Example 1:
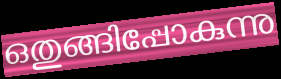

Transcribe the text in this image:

ഒതുങ്ങിപ്പോകുന്നു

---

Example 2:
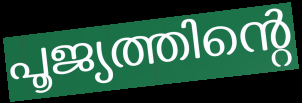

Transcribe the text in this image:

പൂജ്യത്തിന്റെ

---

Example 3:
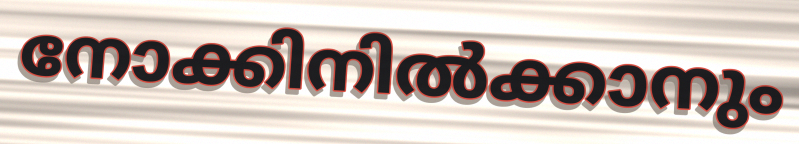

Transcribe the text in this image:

നോക്കിനിൽക്കാനും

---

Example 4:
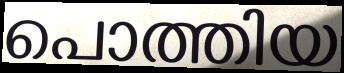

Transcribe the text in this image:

പൊത്തിയ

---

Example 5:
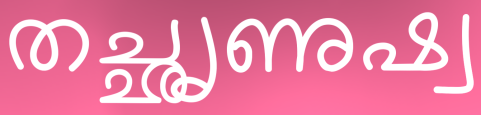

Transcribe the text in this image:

തച്ഛൃണുഷ്വ